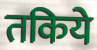
तकिये